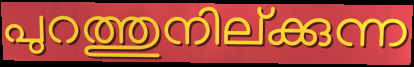
പുറത്തുനില്ക്കുന്ന